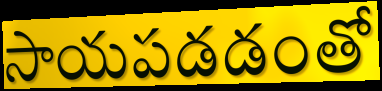
సాయపడడంతో